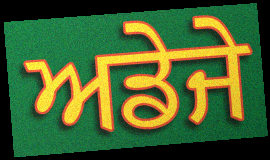
ਅਡੇਜੇ